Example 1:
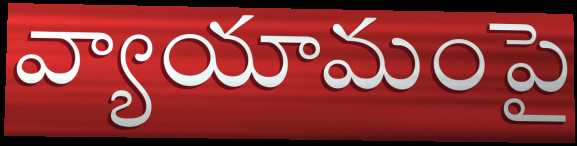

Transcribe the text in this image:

వ్యాయామంపై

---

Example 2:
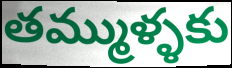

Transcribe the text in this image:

తమ్ముళ్ళకు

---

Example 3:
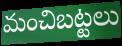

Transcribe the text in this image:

మంచిబట్టలు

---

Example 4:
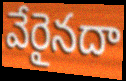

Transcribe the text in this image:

వేరైనదా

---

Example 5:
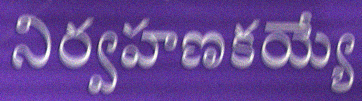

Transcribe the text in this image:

నిర్వహణకయ్యే